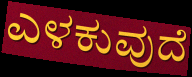
ಎಳಕುವುದೆ